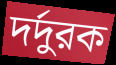
দর্দুরক